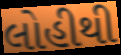
લોહીથી